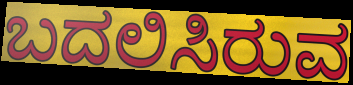
ಬದಲಿಸಿರುವ